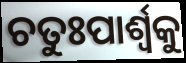
ଚତୁଃପାର୍ଶ୍ୱକୁ